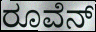
ರೂವೆನ್